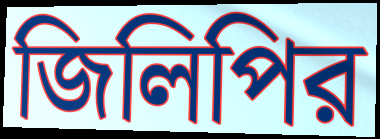
জিলিপির